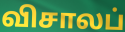
விசாலப்